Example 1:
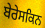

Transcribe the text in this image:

ਬੇਰੇਸਕਿਨ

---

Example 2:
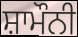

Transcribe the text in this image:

ਸ਼ਾਮੌਨੀ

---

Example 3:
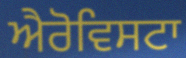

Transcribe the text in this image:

ਐਰੋਵਿਸਟਾ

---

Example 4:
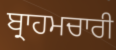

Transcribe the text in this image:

ਬ੍ਰਾਹਮਚਾਰੀ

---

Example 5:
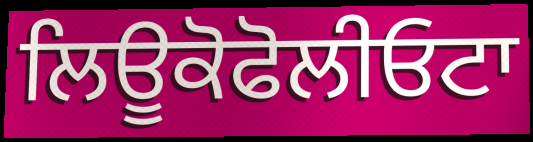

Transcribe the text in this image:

ਲਿਊਕੋਫੋਲੀਓਟਾ